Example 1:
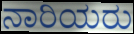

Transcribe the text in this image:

ನಾರಿಯರು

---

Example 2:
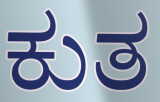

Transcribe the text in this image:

ಕುತ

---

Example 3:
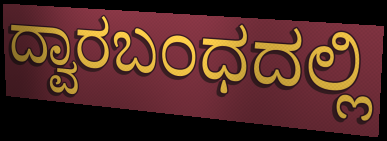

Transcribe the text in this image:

ದ್ವಾರಬಂಧದಲ್ಲಿ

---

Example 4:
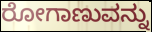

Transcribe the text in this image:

ರೋಗಾಣುವನ್ನು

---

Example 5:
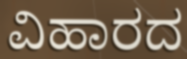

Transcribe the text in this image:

ವಿಹಾರದ